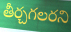
తీర్చగలరని